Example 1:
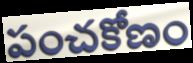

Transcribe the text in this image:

పంచకోణం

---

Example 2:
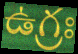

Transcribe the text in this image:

ఉగ్రః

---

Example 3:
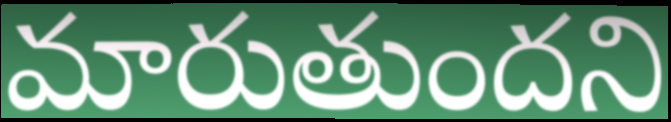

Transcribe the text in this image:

మారుతుందని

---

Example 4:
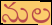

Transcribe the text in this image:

నుల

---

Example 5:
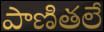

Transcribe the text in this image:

పాణితలే